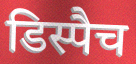
डिस्‍पैच